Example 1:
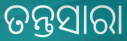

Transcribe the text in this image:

ତନ୍ତସାରା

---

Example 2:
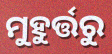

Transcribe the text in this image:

ମୁହୁର୍ତ୍ତରୁ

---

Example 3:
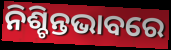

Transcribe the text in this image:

ନିଶ୍ଚିନ୍ତଭାବରେ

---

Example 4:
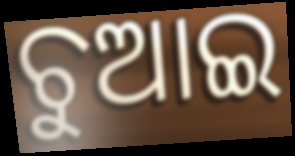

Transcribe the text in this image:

ଚୁଆଇ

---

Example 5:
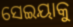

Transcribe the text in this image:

ସେଇୟାକୁ